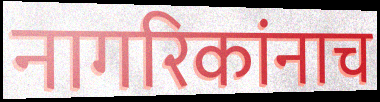
नागरिकांनाच